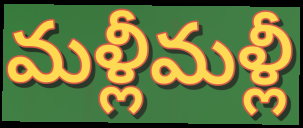
మళ్లీమళ్లీ